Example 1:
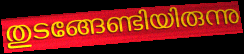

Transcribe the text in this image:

തുടങ്ങേണ്ടിയിരുന്നു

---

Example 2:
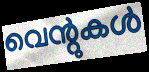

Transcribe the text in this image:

വെന്റുകൾ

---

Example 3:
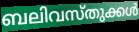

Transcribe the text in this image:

ബലിവസ്തുക്കൾ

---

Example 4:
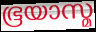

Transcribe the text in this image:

ഭൂയാസ്മ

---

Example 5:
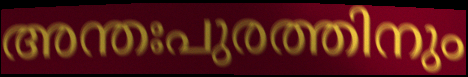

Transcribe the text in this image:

അന്തഃപുരത്തിനും